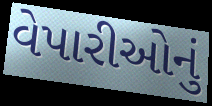
વેપારીઓનું